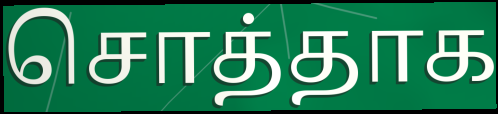
சொத்தாக